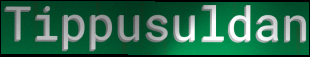
Tippusuldan